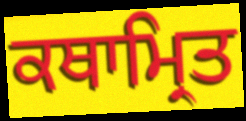
ਕਥਾਮ੍ਰਿਤ